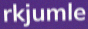
rkjumle